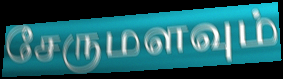
சேருமளவும்